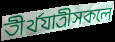
তীৰ্থযাত্ৰীসকলে